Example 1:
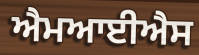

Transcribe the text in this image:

ਐਮਆਈਐਸ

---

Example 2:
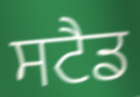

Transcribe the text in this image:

ਸਟੈਡ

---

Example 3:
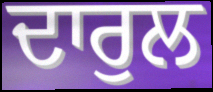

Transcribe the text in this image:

ਦਾਰੁਲ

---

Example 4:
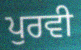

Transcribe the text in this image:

ਪੁਰਵੀ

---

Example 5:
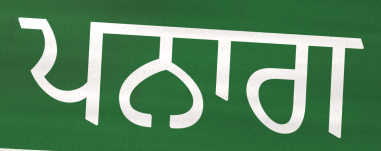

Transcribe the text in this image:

ਪਨਾਗ